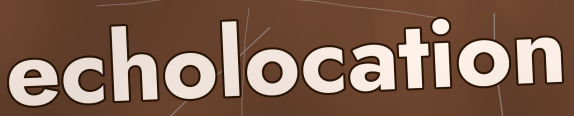
echolocation